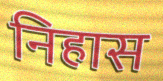
निहास